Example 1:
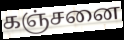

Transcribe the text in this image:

கஞ்சனை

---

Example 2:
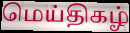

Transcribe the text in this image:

மெய்திகழ்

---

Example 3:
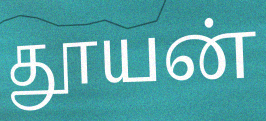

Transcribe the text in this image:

தூயன்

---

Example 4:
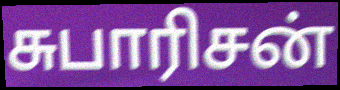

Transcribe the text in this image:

சுபாரிசன்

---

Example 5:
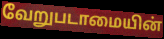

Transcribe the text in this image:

வேறுபடாமையின்